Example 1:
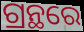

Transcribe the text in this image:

ଗ୍ରନ୍ଥରେ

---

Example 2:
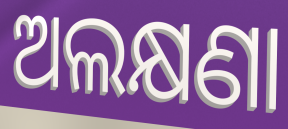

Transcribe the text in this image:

ଅଲକ୍ଷଣା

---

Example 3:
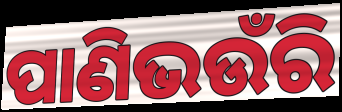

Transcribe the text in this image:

ପାଣିଭଉଁରି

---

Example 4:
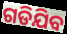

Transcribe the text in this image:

ଗଡିଯିବ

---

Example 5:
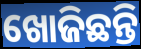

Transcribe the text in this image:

ଖୋଜିଛନ୍ତି